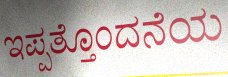
ಇಪ್ಪತ್ತೊಂದನೆಯ